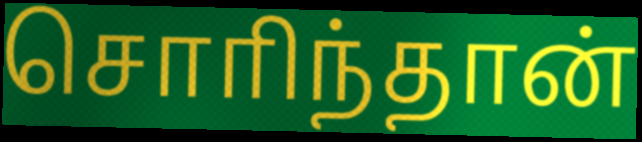
சொரிந்தான்